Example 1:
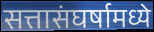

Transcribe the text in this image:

सत्तासंघर्षामध्ये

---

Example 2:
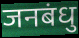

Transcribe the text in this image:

जनबंधु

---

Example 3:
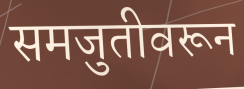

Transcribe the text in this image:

समजुतीवरून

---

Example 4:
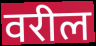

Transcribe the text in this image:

वरील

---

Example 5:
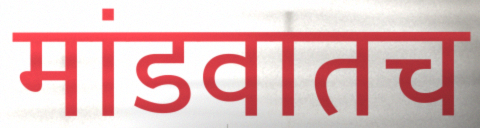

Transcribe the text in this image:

मांडवातच